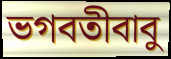
ভগবতীবাবু